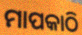
ମାପକାଠି